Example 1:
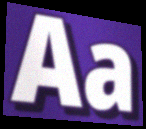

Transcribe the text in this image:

Aa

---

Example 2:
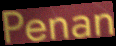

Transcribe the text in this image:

Penan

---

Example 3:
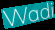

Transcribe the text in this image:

Wadi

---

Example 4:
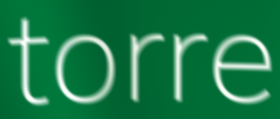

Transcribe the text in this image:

torre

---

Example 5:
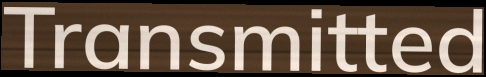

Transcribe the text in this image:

Transmitted